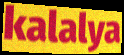
kalalya